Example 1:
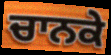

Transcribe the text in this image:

ਚਾਨਕੇ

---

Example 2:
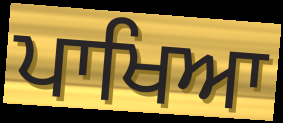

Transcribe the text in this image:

ਪਾਖਿਆ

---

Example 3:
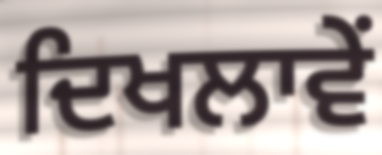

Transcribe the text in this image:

ਦਿਖਲਾਵੇਂ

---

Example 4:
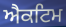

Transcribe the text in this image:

ਐਕਟਿਮ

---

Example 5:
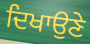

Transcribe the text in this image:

ਦਿਖਾਉਣੇ